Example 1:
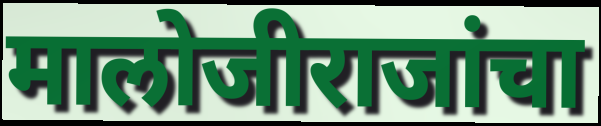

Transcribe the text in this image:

मालोजीराजांचा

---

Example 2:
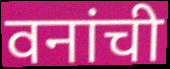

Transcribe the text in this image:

वनांची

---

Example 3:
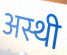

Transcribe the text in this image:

अस्थी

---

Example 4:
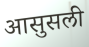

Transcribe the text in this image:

आसुसली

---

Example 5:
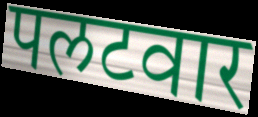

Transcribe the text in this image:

पलटवार